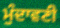
ਮੁੰਦਾਵਣੀ